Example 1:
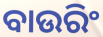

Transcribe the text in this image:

ବାଉରିଂ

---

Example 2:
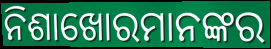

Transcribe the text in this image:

ନିଶାଖୋରମାନଙ୍କର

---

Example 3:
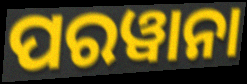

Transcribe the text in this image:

ପରୱାନା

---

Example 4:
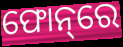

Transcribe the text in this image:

ଫୋନ୍‌ରେ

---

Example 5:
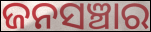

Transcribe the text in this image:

ଜନସଞ୍ଚାର